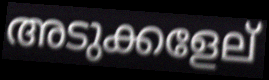
അടുക്കളേല്